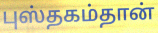
புஸ்தகம்தான்